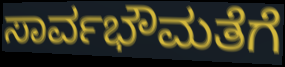
ಸಾರ್ವಭೌಮತೆಗೆ